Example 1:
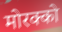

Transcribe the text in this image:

मोरक्को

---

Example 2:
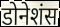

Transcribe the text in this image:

डोनेशंस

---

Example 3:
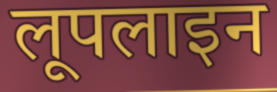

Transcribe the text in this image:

लूपलाइन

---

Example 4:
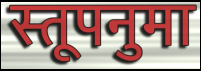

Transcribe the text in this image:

स्तूपनुमा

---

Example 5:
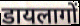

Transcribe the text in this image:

डायलागों